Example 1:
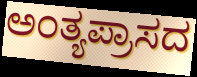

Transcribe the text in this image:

ಅಂತ್ಯಪ್ರಾಸದ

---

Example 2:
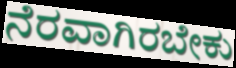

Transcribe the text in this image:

ನೆರವಾಗಿರಬೇಕು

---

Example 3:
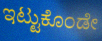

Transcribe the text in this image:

ಇಟ್ಟುಕೊಂಡೇ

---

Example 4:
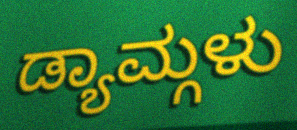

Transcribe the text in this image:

ಡ್ಯಾಮ್ಗಳು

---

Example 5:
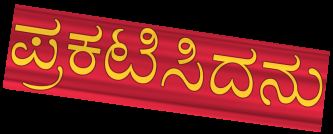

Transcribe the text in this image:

ಪ್ರಕಟಿಸಿದನು